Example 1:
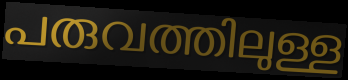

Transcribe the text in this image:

പരുവത്തിലുള്ള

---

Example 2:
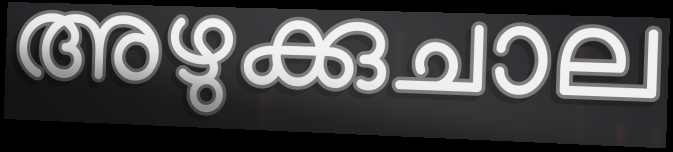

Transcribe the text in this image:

അഴുക്കുചാല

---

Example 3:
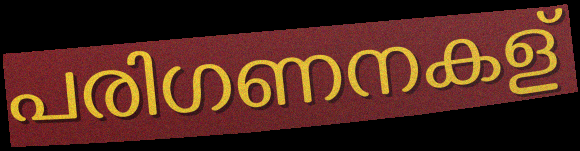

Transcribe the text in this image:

പരിഗണനകള്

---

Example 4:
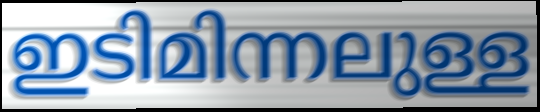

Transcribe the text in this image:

ഇടിമിന്നലുള്ള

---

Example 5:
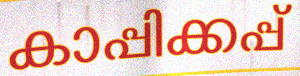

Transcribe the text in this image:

കാപ്പിക്കപ്പ്